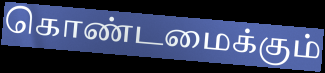
கொண்டமைக்கும்